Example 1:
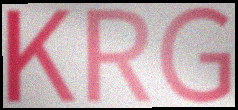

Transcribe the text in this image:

KRG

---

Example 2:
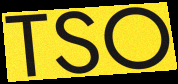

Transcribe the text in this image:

TSO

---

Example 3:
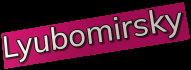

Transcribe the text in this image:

Lyubomirsky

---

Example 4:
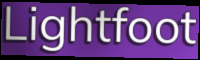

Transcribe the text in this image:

Lightfoot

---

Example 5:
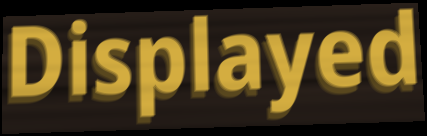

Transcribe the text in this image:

Displayed